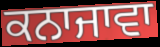
ਕਨਾਜਾਵਾ